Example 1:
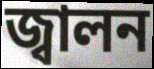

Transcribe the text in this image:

জ্বালন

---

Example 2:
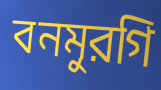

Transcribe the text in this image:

বনমুরগি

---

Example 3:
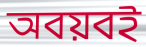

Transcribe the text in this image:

অবয়বই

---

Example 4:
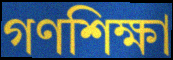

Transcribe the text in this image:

গণশিক্ষা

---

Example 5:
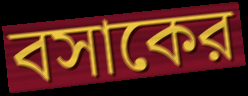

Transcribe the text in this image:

বসাকের